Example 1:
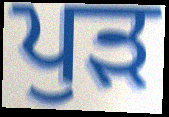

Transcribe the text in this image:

ਪੁੜ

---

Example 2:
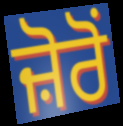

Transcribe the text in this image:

ਜ਼ੋਰੋਂ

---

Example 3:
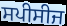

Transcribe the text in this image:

ਸਪੀਸੀਜ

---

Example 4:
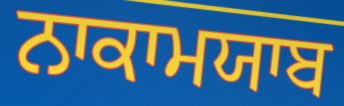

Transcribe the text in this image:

ਨਾਕਾਮਯਾਬ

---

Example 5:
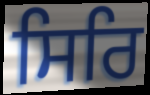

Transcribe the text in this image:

ਸਿਰਿ